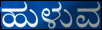
ಹುಳುವ